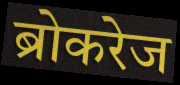
ब्रोकरेज